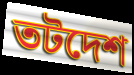
তটদেশ